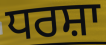
ਧਰਸ਼ਾ